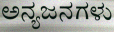
ಅನ್ಯಜನಗಳು